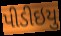
પીડીઇયુ